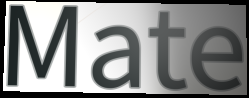
Mate